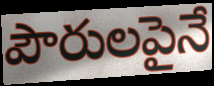
పౌరులపైనే